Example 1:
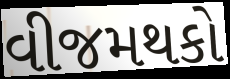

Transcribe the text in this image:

વીજમથકો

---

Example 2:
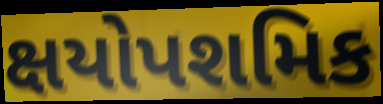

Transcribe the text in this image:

ક્ષયોપશમિક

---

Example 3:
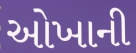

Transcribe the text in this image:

ઓખાની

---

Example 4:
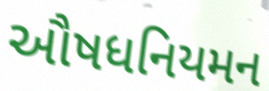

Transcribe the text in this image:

ઔષધનિયમન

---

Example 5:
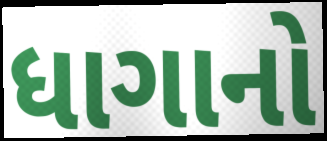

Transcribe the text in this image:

ધાગાનો